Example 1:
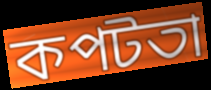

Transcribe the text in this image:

কপটতা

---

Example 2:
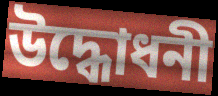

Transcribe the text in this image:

উদ্ধোধনী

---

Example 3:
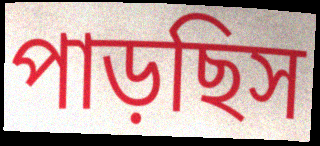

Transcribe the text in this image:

পাড়ছিস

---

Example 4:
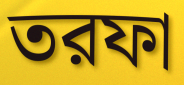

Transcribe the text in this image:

তরফা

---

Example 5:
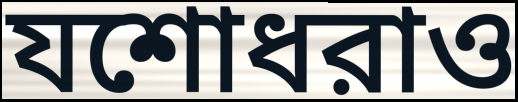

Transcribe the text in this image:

যশোধরাও